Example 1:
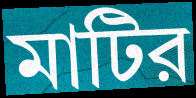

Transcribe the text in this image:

মাটির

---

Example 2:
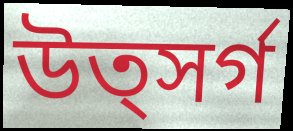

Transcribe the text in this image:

উত্সর্গ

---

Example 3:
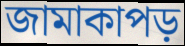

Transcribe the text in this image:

জামাকাপড়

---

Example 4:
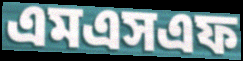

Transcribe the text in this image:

এমএসএফ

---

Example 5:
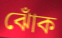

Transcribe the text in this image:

ঝোঁক